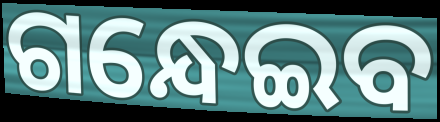
ଗନ୍ଧେଇବ